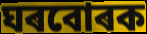
ঘৰবোৰক